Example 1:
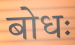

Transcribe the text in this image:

बोधः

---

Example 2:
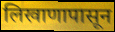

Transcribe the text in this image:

लिखाणापासून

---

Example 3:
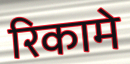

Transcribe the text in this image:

रिकामे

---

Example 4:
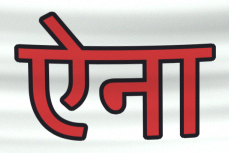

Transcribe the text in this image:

ऐना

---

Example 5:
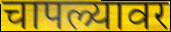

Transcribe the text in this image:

चापल्यावर